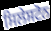
ਸਿਲੇਸਟੋਨ